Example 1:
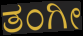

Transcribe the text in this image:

ತಂಗೀ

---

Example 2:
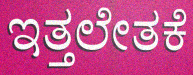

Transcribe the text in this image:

ಇತ್ತಲೇತಕೆ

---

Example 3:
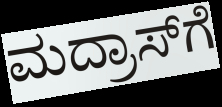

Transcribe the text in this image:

ಮದ್ರಾಸ್‍ಗೆ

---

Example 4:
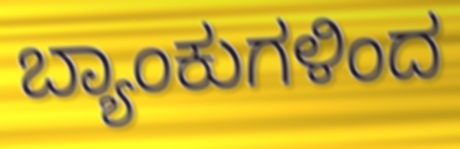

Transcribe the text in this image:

ಬ್ಯಾಂಕುಗಳಿಂದ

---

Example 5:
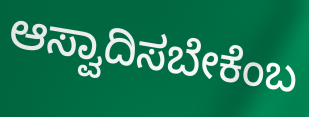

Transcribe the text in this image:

ಆಸ್ವಾದಿಸಬೇಕೆಂಬ